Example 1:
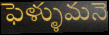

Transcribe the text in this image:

ఫెళ్ళుమనె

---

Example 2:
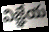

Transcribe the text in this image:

విజ్ఞేయ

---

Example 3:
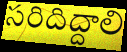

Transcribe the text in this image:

సరిదిద్దాలి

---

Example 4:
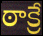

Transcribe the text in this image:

ఠాక్రే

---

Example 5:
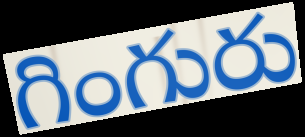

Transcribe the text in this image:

గింగురు